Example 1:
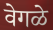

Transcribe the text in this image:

वेगळे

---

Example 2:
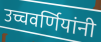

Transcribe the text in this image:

उच्चवर्णियांनी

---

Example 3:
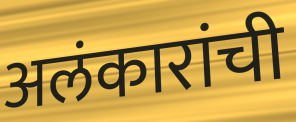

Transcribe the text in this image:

अलंकारांची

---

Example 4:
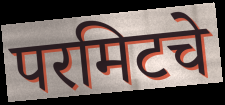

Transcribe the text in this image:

परमिटचे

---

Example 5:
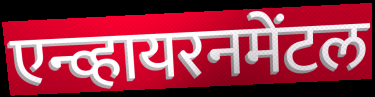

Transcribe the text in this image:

एन्व्हायरनमेंटल